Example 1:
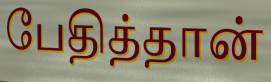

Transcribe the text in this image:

பேதித்தான்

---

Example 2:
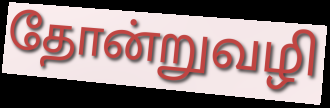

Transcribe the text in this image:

தோன்றுவழி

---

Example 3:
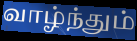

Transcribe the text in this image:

வாழ்ந்தும்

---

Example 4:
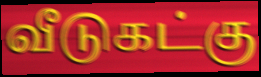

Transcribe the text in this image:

வீடுகட்கு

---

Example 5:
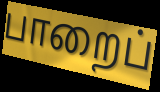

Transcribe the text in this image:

பாறைப்